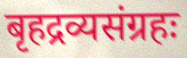
बृहद्रव्यसंग्रहः